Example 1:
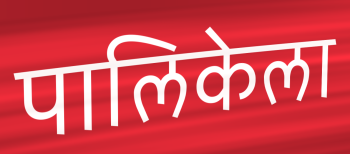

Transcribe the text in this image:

पालिकेला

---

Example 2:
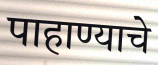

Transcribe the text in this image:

पाहाण्याचे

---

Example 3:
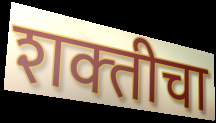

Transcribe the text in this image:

शक्‍तीचा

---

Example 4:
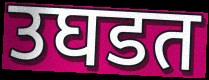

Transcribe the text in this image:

उघडत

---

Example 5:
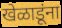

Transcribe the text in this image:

खेळाडूंना